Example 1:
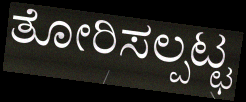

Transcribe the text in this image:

ತೋರಿಸಲ್ಪಟ್ಟ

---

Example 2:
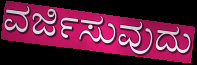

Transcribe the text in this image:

ವರ್ಜಿಸುವುದು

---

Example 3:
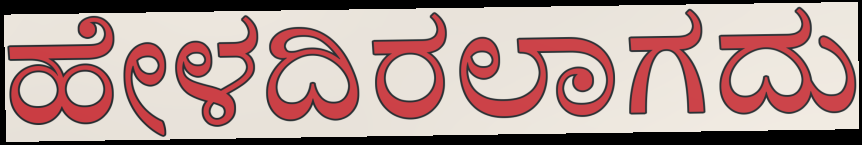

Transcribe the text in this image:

ಹೇಳದಿರಲಾಗದು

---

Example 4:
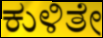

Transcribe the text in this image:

ಕುಳಿತೇ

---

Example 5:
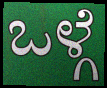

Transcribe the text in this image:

ಒಳ್ಗೆ